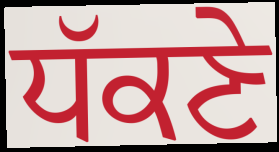
ਧੱਕਣੇ